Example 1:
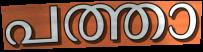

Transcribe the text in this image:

പത്താ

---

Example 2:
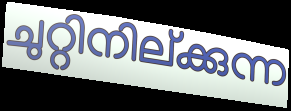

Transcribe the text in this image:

ചുറ്റിനില്ക്കുന്ന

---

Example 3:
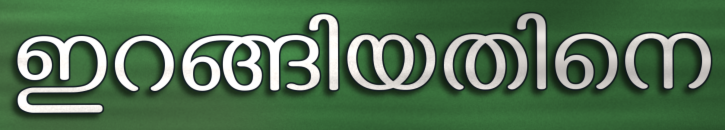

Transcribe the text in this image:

ഇറങ്ങിയതിനെ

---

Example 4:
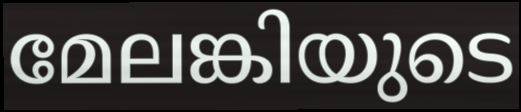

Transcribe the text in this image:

മേലങ്കിയുടെ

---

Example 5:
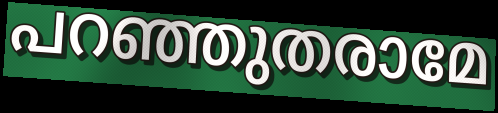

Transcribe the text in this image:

പറഞ്ഞുതരാമേ